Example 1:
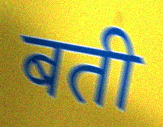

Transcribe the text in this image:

बती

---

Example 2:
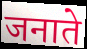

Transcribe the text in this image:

जनाते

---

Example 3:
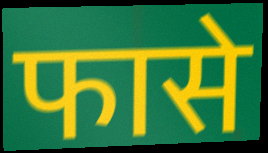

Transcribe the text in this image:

फासे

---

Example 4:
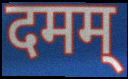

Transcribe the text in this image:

दमम्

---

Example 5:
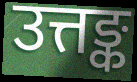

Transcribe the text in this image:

उत्तङ्क